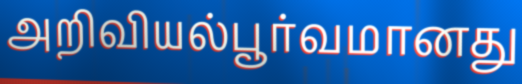
அறிவியல்பூர்வமானது